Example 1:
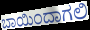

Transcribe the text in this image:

ಬಾಯಿಂದಾಗಲಿ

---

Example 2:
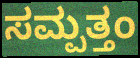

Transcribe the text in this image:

ಸಮ್ಪತ್ತಂ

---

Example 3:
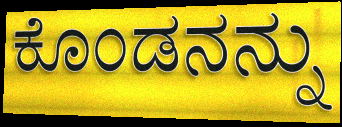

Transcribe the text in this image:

ಕೊಂಡನನ್ನು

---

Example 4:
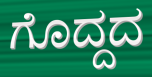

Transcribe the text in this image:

ಗೊದ್ದದ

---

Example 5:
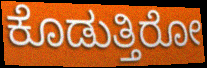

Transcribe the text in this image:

ಕೊಡುತ್ತಿರೋ